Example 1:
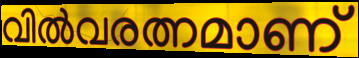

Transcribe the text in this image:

വിൽവരത്നമാണ്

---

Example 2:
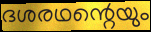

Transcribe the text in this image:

ദശരഥന്റെയും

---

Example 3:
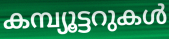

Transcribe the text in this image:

കമ്പ്യൂട്ടറുകൾ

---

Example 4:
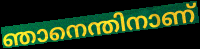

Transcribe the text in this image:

ഞാനെന്തിനാണ്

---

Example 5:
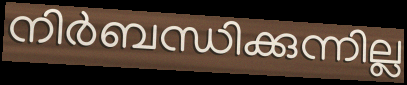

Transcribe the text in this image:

നിർബന്ധിക്കുന്നില്ല